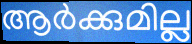
ആർക്കുമില്ല